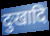
दुःखादि